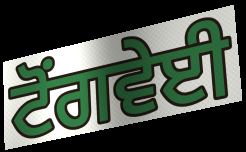
ਟੋਂਗਵੇਈ